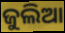
ଜୁଲିଆ